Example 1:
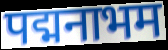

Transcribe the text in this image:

पद्मनाभम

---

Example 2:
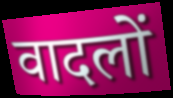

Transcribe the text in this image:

वादलों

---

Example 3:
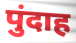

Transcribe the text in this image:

पुंदाह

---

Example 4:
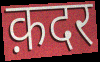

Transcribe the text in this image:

क़दर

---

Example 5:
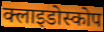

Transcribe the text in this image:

क्लाइडोस्कोप